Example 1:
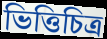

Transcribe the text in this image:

ভিত্তিচিত্র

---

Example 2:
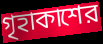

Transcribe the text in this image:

গৃহাকাশের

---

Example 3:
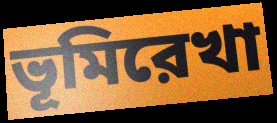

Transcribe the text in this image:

ভূমিরেখা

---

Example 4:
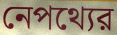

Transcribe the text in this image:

নেপথ্যের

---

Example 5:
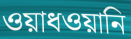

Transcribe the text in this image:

ওয়াধওয়ানি